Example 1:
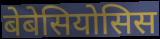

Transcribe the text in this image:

बेबेसियोसिस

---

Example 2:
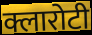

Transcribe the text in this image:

क्लारोटी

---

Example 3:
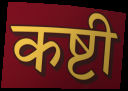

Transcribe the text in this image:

कष्टी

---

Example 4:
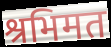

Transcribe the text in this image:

श्रभिमत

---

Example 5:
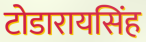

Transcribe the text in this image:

टोडारायसिंह